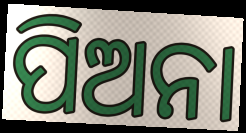
ପିଅନା